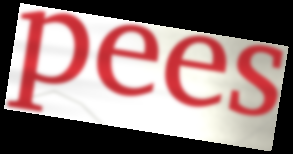
pees